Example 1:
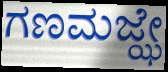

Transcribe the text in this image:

ಗಣಮಜ್ಝೇ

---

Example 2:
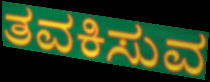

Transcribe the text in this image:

ತವಕಿಸುವ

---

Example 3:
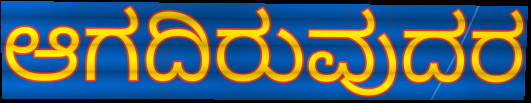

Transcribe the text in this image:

ಆಗದಿರುವುದರ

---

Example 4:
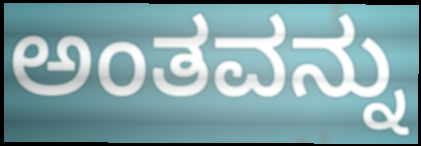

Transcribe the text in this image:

ಅಂತವನ್ನು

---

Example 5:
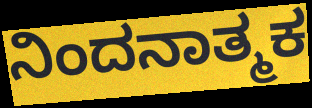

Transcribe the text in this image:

ನಿಂದನಾತ್ಮಕ